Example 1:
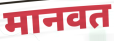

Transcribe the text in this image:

मानवत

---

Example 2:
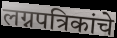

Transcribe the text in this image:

लग्नपत्रिकांचे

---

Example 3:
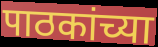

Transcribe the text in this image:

पाठकांच्या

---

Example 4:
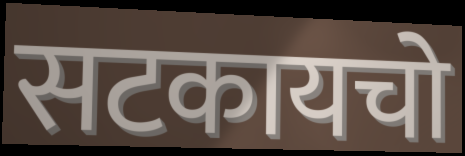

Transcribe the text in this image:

सटकायचो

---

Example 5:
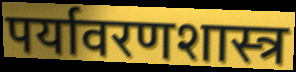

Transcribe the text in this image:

पर्यावरणशास्त्र